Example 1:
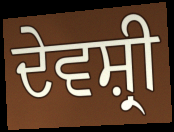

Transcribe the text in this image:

ਦੇਵਸ਼੍ਰੀ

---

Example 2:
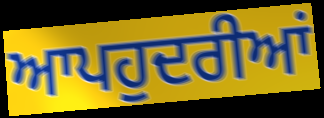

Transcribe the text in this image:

ਆਪਹੁਦਰੀਆਂ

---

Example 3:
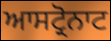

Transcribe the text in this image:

ਆਸਟ੍ਰੋਨਾਟ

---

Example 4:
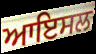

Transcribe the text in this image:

ਆਇਸਲ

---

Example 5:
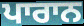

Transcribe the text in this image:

ਪਾਰਾਨ